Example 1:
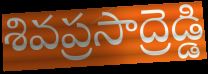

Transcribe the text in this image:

శివప్రసాద్రెడ్డి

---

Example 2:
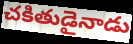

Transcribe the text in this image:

చకితుడైనాడు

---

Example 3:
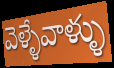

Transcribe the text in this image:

వెళ్ళేవాళ్ళు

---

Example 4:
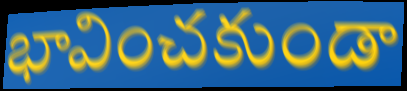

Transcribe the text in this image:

భావించకుండా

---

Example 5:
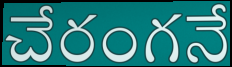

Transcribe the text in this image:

చేరంగనే